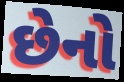
છેનો